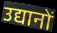
उद्यानों